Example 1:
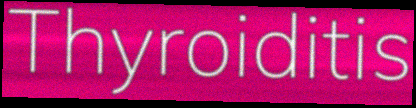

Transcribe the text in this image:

Thyroiditis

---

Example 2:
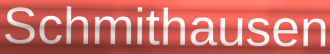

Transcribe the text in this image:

Schmithausen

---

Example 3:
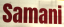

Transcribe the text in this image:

Samani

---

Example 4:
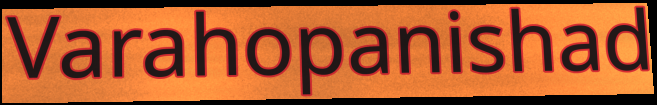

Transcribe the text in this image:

Varahopanishad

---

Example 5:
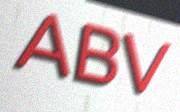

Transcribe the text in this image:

ABV